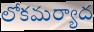
లోకమర్యాద